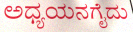
ಅಧ್ಯಯನಗೈದು